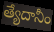
త్యేదానీం